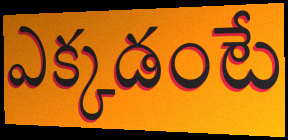
ఎక్కడంటే